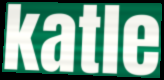
katle